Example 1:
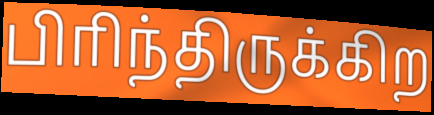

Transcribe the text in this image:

பிரிந்திருக்கிற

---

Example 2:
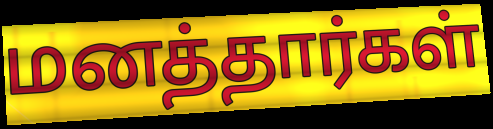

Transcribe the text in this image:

மனத்தார்கள்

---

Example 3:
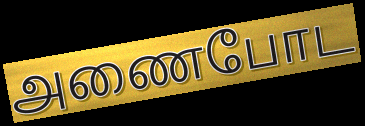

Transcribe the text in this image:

அணைபோட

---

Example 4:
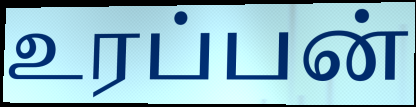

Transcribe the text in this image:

உரப்பன்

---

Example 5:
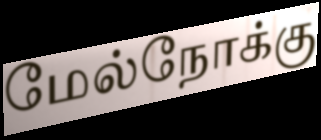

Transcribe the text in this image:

மேல்நோக்கு